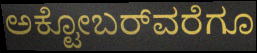
ಅಕ್ಟೋಬರ್‌ವರೆಗೂ